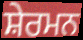
ਸ਼ੇਰਮਨ